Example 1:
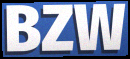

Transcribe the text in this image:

BZW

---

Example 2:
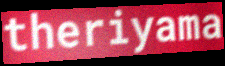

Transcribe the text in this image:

theriyama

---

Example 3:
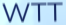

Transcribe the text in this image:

WTT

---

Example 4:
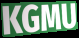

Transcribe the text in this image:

KGMU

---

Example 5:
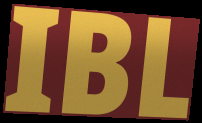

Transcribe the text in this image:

IBL